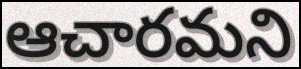
ఆచారమని